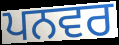
ਪਨਵਰ